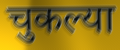
चुकल्या